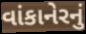
વાંકાનેરનું